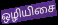
ஒழியிசை